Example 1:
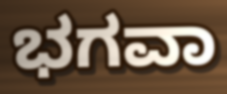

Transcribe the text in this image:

ಭಗವಾ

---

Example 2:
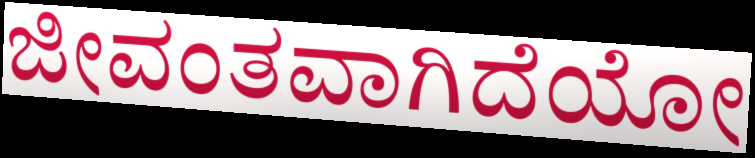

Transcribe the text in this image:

ಜೀವಂತವಾಗಿದೆಯೋ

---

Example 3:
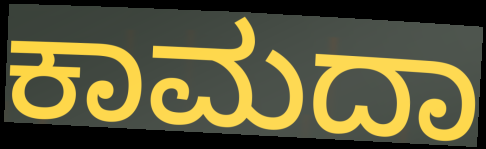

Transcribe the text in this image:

ಕಾಮದಾ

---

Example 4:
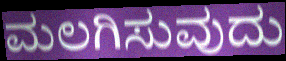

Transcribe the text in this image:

ಮಲಗಿಸುವುದು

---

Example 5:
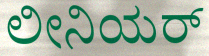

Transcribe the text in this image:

ಲೀನಿಯರ್